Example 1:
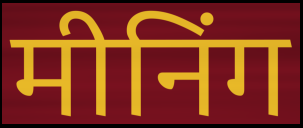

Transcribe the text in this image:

मीनिंग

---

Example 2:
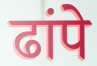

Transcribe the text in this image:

ढांपे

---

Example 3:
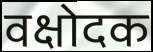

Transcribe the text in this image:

वक्षोदक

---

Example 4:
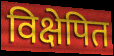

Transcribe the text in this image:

विक्षेपित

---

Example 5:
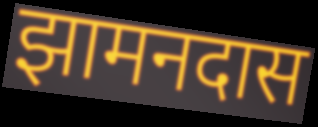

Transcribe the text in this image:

झामनदास